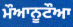
ਮੌਆਨੂਟੌਆ